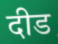
दीड